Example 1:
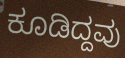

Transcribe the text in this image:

ಕೂಡಿದ್ದವು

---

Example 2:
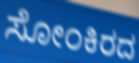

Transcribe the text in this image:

ಸೋಂಕಿರದ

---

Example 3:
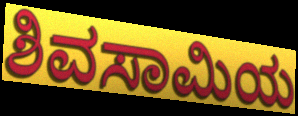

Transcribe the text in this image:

ಶಿವಸಾಮಿಯ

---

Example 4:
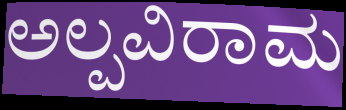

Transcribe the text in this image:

ಅಲ್ಪವಿರಾಮ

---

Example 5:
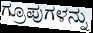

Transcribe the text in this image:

ಗ್ರೂಪುಗಳನ್ನು